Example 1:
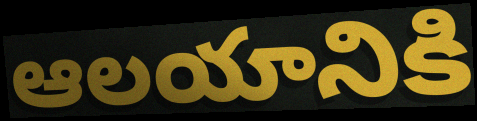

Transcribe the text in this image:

ఆలయానికి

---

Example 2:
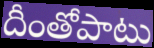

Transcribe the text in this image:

దీంతోపాటు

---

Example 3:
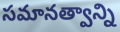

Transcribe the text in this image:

సమానత్వాన్ని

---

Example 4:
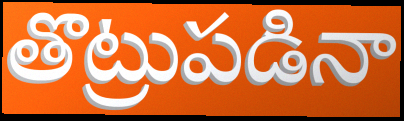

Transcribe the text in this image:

తొట్రుపడినా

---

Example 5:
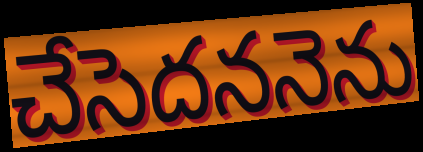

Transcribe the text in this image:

చేసెదననెను